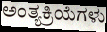
ಅಂತ್ಯಕ್ರಿಯೆಗಳು